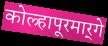
कोल्हापूरमार्गे